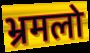
भ्रमलो